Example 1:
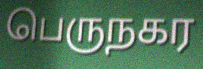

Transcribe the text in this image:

பெருநகர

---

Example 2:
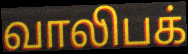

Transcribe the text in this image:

வாலிபக்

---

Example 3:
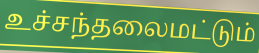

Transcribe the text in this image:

உச்சந்தலைமட்டும்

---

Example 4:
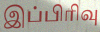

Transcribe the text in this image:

இப்பிரிவு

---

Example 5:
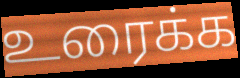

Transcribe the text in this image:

உரைக்க